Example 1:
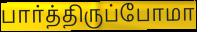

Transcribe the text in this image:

பார்த்திருப்போமா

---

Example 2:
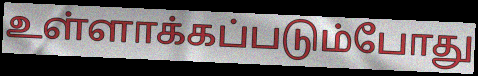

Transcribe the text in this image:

உள்ளாக்கப்படும்போது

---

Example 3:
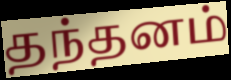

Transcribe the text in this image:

தந்தனம்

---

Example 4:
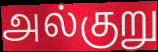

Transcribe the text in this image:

அல்குறு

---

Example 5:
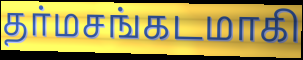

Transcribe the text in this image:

தர்மசங்கடமாகி